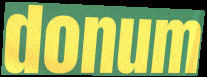
donum